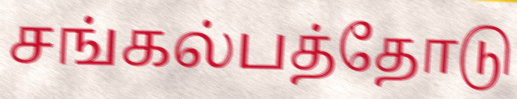
சங்கல்பத்தோடு